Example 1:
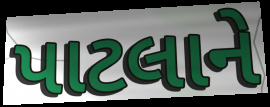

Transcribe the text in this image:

પાટલાને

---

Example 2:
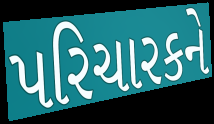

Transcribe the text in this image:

પરિચારકને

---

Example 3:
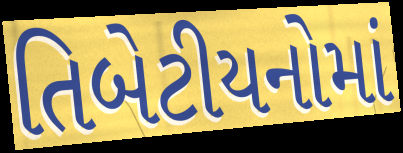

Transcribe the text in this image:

તિબેટીયનોમાં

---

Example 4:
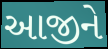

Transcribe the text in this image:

આજીને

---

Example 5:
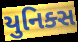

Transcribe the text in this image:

યુનિક્સ